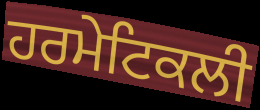
ਹਰਮੇਟਿਕਲੀ